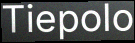
Tiepolo